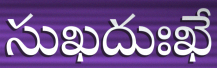
సుఖదుఃఖే